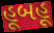
હૂબહૂ